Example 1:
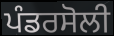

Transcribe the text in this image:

ਪੰਡਰਸੋਲੀ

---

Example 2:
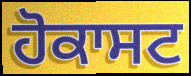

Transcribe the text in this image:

ਹੋਕਾਸਟ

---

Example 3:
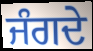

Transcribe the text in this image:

ਜੰਗਦੇ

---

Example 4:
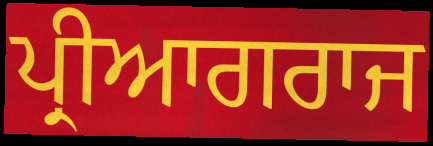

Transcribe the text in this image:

ਪ੍ਰੀਆਗਰਾਜ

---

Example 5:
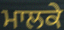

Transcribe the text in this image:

ਮਾਲਕੇ